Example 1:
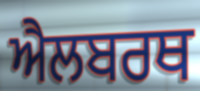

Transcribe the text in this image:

ਐਲਬਰਥ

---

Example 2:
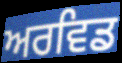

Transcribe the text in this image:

ਅਰਵਿਡ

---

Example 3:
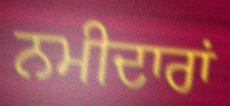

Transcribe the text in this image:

ਨਮੀਦਾਰਾਂ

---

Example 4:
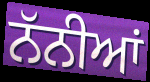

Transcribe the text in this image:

ਨੱਨੀਆਂ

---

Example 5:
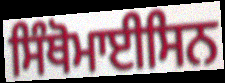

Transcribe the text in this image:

ਸਿੰਥੋਮਾਈਸਿਨ